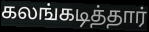
கலங்கடித்தார்